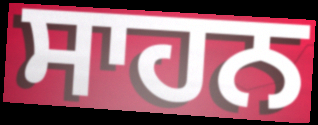
ਸਾਹਨ